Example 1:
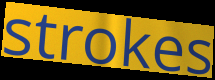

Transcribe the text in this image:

strokes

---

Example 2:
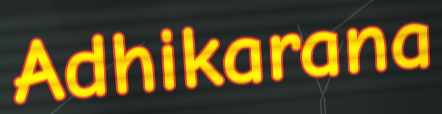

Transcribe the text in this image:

Adhikarana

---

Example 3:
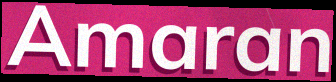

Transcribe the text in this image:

Amaran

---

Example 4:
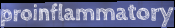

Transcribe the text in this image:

proinflammatory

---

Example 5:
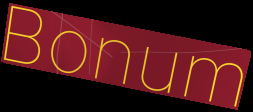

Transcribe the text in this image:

Bonum